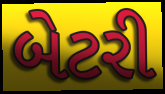
બેટરી